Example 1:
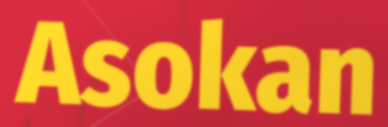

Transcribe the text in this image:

Asokan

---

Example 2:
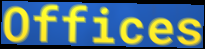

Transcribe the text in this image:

Offices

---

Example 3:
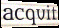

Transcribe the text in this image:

acquit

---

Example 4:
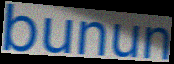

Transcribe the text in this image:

bunun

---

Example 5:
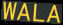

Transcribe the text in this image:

WALA